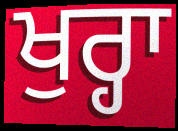
ਖੁਰ੍ਹਾ